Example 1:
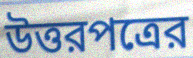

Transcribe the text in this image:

উত্তরপত্রের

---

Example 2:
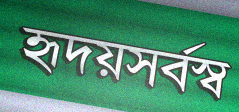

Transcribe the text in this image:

হৃদয়সর্বস্ব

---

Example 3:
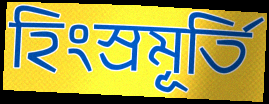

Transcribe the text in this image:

হিংস্রমূর্তি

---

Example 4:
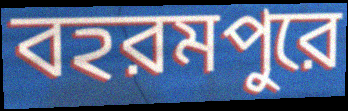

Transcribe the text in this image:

বহরমপুরে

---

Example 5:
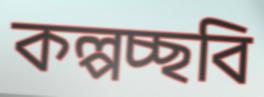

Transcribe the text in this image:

কল্পচ্ছবি